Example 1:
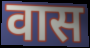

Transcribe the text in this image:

वास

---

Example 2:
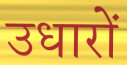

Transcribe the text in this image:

उधारों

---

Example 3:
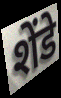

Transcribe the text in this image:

शेंडे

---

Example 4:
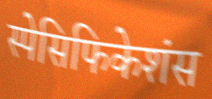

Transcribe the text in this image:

स्पेसिफिकेशंस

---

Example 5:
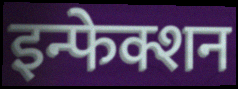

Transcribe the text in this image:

इन्फेक्शन